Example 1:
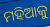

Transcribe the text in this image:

ମହିଆକୁ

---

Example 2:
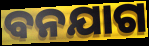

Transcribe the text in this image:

ବନଯାଗ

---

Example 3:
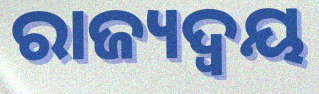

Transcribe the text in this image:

ରାଜ୍ୟଦ୍ୱୟ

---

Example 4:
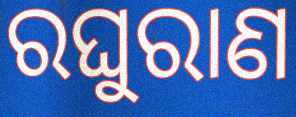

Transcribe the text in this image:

ରଘୁରାଣ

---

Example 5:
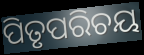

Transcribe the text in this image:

ପିତୃପରିଚୟ